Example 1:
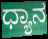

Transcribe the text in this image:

ಧ್ಯಾನ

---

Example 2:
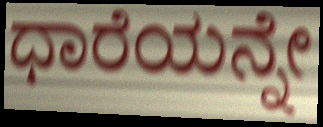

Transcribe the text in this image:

ಧಾರೆಯನ್ನೇ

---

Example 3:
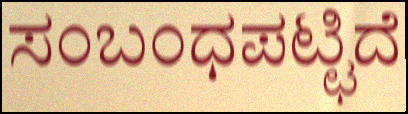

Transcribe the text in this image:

ಸಂಬಂಧಪಟ್ಟಿದೆ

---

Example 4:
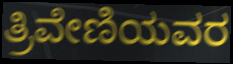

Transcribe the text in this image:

ತ್ರಿವೇಣಿಯವರ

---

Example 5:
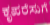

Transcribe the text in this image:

ಕೃಪರೆಸುಗೆ